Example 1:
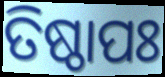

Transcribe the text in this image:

ତିଷ୍ଠାପଃ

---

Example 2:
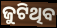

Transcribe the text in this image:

ଜୁଟିଥିବ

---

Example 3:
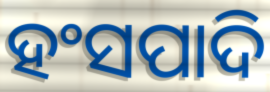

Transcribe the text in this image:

ହଂସପାଦି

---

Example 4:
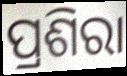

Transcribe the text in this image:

ପ୍ରଶିରା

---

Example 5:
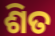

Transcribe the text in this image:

ଶିତ